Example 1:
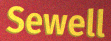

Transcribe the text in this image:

Sewell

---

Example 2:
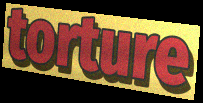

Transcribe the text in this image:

torture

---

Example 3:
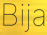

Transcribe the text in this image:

Bija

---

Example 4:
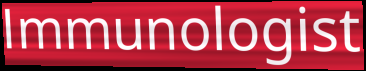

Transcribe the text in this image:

Immunologist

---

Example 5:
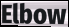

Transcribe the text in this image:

Elbow